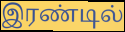
இரண்டில்